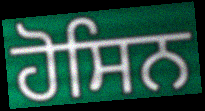
ਹੋਸਿਨ